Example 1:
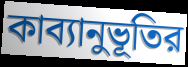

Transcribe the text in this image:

কাব্যানুভূতির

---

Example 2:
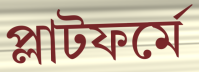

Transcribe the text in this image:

প্লাটফর্মে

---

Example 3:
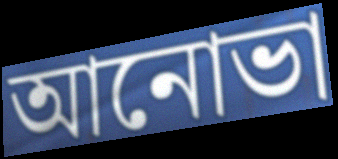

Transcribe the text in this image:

আনোভা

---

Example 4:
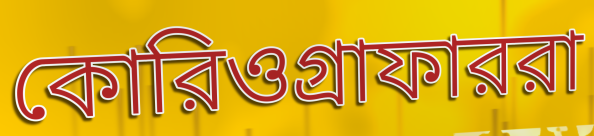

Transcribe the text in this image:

কোরিওগ্রাফাররা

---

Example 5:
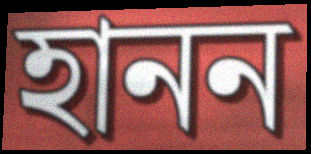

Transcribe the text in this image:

হানন